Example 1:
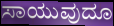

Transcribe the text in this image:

ಸಾಯುವುದೂ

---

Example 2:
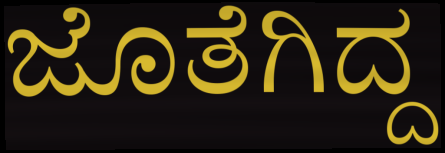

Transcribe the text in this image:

ಜೊತೆಗಿದ್ದ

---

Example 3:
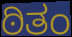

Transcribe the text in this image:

ಠಿತಂ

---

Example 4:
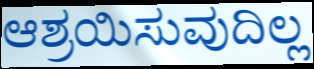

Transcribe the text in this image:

ಆಶ್ರಯಿಸುವುದಿಲ್ಲ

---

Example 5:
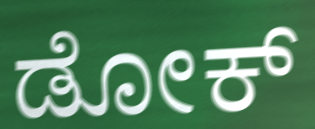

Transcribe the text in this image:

ಡೋಕ್